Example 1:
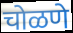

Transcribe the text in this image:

चोळणे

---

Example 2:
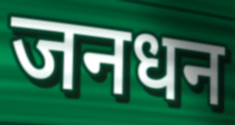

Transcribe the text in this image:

जनधन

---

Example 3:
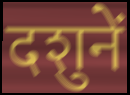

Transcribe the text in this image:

दशुनें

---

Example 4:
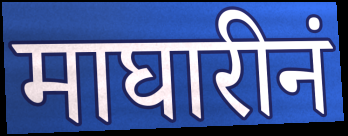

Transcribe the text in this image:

माघारीनं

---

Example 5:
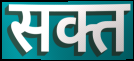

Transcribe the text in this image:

सक्त